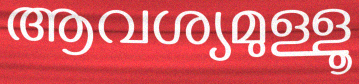
ആവശ്യമുള്ളൂ